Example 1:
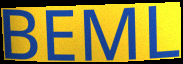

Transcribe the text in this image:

BEML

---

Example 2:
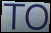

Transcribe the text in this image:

TO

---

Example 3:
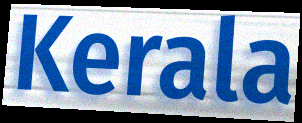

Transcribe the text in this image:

Kerala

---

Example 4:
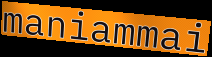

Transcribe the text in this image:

maniammai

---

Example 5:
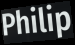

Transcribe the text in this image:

Philip